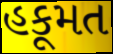
હકૂમત